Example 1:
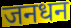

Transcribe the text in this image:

जनधन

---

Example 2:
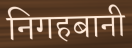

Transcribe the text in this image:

निगहबानी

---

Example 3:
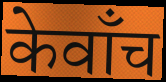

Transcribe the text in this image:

केवाँच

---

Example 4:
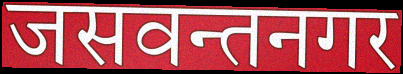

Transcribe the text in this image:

जसवन्तनगर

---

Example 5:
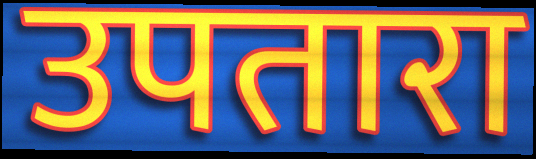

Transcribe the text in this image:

उपतारा